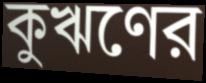
কুঋণের